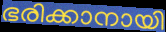
ഭരിക്കാനായി